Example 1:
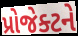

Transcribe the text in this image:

પ્રોજેક્ટને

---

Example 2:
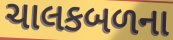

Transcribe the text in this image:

ચાલકબળના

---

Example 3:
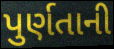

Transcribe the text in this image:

પુર્ણતાની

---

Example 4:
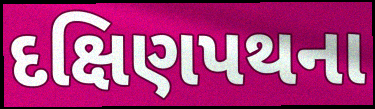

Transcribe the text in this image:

દક્ષિણપથના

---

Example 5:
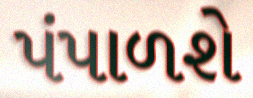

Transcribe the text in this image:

પંપાળશે